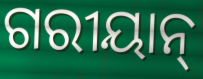
ଗରୀୟାନ୍